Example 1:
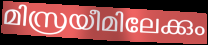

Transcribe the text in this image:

മിസ്രയീമിലേക്കും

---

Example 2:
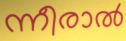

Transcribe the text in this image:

ന്നീരാൽ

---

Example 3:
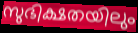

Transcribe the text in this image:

സുഭിക്ഷതയിലും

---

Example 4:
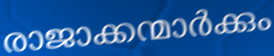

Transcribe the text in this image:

രാജാക്കന്മാർക്കും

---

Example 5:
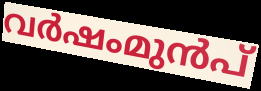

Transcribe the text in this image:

വർഷംമുൻപ്